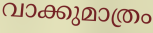
വാക്കുമാത്രം